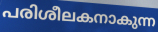
പരിശീലകനാകുന്ന